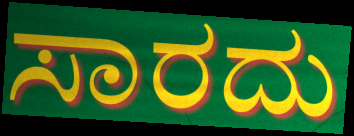
ಸಾರದು